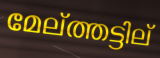
മേല്ത്തട്ടില്